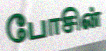
போசின்